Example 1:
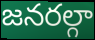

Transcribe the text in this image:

జనరల్గా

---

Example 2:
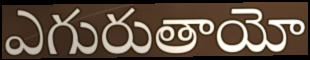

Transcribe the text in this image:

ఎగురుతాయో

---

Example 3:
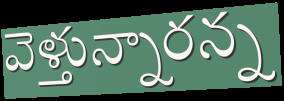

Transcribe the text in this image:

వెళ్తున్నారన్న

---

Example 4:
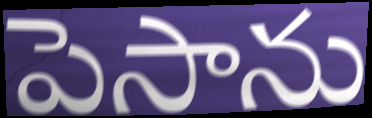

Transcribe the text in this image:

పెసాను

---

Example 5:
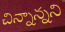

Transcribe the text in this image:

చిన్నాన్నని